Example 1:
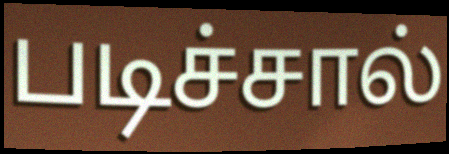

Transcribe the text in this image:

படிச்சால்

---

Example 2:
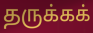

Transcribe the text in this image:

தருக்கக்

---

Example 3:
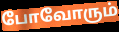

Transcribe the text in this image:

போவோரும்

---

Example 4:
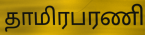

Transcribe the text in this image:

தாமிரபரணி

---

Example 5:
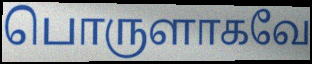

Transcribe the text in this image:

பொருளாகவே